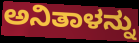
ಅನಿತಾಳನ್ನು